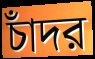
চাঁদর